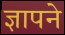
ज्ञापने